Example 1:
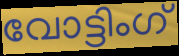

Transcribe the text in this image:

വോട്ടിംഗ്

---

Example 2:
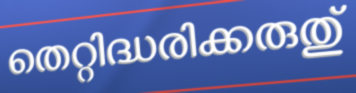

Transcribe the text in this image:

തെറ്റിദ്ധരിക്കരുതു്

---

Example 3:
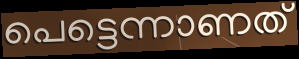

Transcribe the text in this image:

പെട്ടെന്നാണത്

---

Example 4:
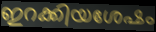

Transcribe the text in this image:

ഇറക്കിയശേഷം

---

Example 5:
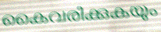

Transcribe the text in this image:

കൈവരിക്കുകയും